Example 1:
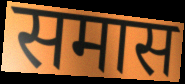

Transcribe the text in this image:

समास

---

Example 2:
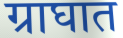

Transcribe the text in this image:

ग्राघात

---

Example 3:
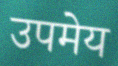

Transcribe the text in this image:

उपमेय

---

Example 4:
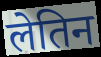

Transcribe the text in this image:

लेतिन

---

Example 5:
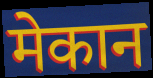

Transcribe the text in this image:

मेकान